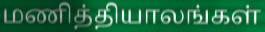
மணித்தியாலங்கள்